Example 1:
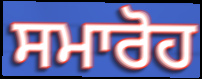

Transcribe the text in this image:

ਸਮਾਰੋਹ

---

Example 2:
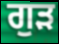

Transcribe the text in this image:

ਗੁੜ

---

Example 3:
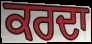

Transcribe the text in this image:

ਕਰਦਾ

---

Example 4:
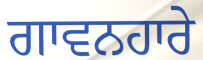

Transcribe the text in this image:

ਗਾਵਨਹਾਰੇ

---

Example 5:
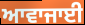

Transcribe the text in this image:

ਆਵਾਜਾਈ